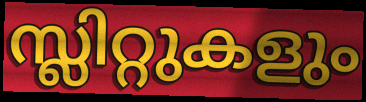
സ്ലിറ്റുകളും